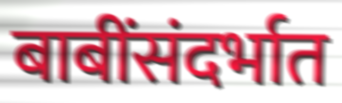
बाबींसंदर्भात